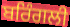
ਬਰਿੰਗਲੀ